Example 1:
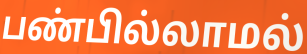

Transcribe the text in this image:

பண்பில்லாமல்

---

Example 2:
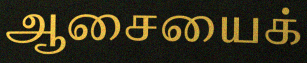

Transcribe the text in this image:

ஆசையைக்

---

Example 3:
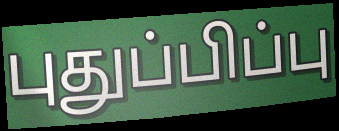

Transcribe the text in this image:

புதுப்பிப்பு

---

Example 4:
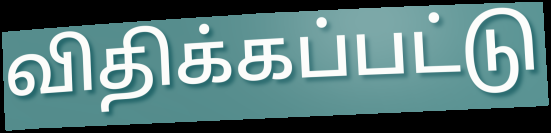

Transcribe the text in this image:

விதிக்கப்பட்டு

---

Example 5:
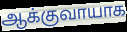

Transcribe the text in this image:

ஆக்குவாயாக